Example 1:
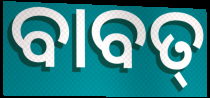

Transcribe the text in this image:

ବାବତ୍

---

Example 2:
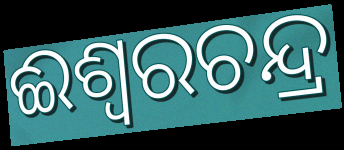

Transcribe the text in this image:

ଈଶ୍ୱରଚନ୍ଦ୍ର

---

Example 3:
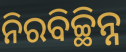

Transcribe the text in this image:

ନିରବିଚ୍ଛିନ୍ନ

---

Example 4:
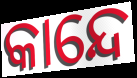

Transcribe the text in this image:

କାନ୍ଦେ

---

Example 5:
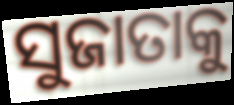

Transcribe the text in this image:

ସୁଜାତାକୁ